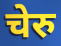
चेरु